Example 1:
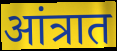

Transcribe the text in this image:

आंत्रात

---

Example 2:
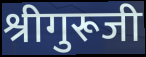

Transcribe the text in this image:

श्रीगुरूजी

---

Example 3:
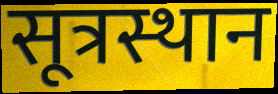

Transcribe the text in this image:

सूत्रस्थान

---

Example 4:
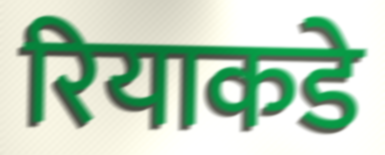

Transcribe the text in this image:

रियाकडे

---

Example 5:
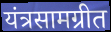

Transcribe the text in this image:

यंत्रसामग्रीत